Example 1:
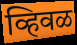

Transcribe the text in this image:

व्हिवळ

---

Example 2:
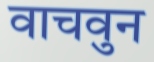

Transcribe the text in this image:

वाचवुन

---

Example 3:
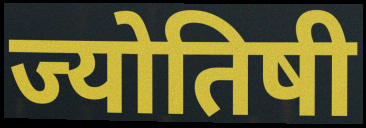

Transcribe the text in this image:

ज्योतिषी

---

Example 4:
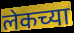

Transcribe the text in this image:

लेकच्या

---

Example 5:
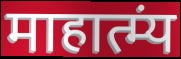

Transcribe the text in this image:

माहात्म्यं